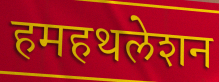
हमहथलेशन